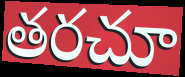
తరచూ